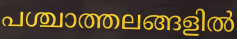
പശ്ചാത്തലങ്ങളിൽ